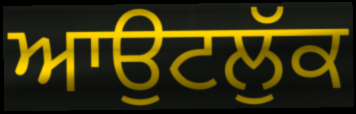
ਆਉਟਲੁੱਕ